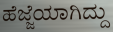
ಹೆಜ್ಜೆಯಾಗಿದ್ದು